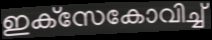
ഇക്‌സേകോവിച്ച്